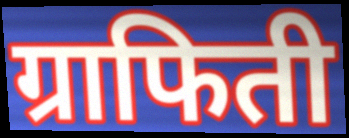
ग्राफिती